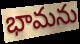
భామను